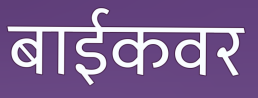
बाईकवर